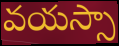
వయస్సా